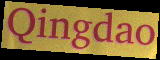
Qingdao